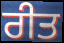
ਰੀਤ